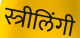
स्त्रीलिंगी